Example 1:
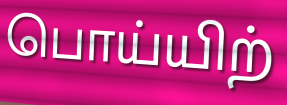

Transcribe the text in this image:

பொய்யிற்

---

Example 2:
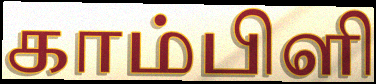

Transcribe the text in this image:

காம்பிளி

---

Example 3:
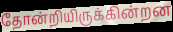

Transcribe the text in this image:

தோன்றியிருக்கின்றன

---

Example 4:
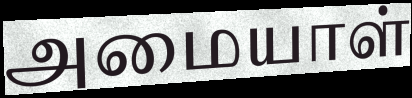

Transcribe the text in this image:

அமையாள்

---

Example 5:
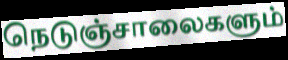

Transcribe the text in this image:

நெடுஞ்சாலைகளும்